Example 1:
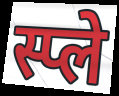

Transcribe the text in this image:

स्प्ले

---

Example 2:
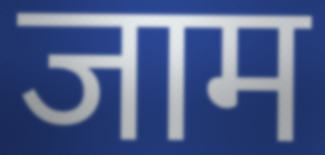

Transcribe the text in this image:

जाम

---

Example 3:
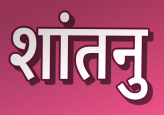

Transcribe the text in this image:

शांतनु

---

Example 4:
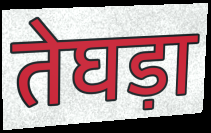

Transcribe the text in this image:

तेघड़ा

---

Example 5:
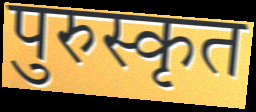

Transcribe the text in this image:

पुरुस्कृत